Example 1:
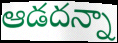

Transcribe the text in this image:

ఆడదన్నా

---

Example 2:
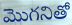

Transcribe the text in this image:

మొగనితో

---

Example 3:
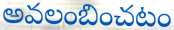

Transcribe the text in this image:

అవలంబించటం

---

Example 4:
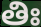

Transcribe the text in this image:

తిః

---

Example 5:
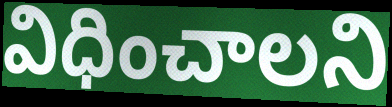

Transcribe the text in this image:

విధించాలని